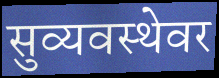
सुव्यवस्थेवर